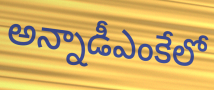
అన్నాడీఎంకేలో